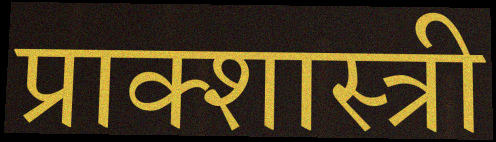
प्राक्शास्त्री